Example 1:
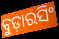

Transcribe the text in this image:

ବୁଡ଼ାରସିଂ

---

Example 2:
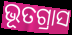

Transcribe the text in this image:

ଭୂତଗ୍ରାସ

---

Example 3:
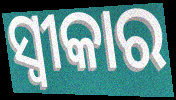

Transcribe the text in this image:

ସ୍ବୀକାର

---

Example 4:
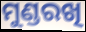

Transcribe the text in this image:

ମୁଣ୍ଡରଖି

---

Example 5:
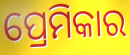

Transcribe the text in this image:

ପ୍ରେମିକାର